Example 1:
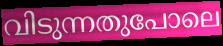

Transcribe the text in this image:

വിടുന്നതുപോലെ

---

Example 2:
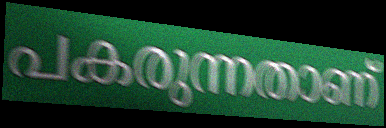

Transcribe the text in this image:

പകരുന്നതാണ്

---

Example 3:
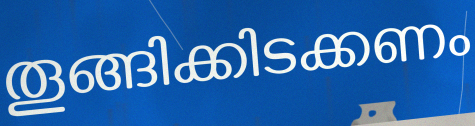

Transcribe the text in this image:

തൂങ്ങിക്കിടക്കണം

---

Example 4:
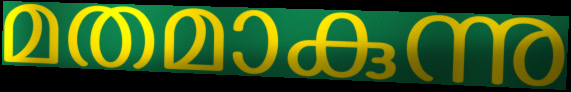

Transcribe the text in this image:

മതമാകുന്നു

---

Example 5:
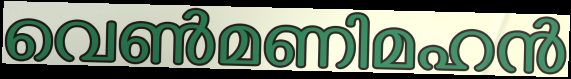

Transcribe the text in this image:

വെൺമണിമഹൻ